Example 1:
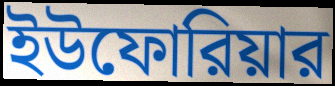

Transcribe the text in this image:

ইউফোরিয়ার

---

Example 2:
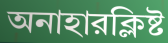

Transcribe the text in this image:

অনাহারক্লিষ্ট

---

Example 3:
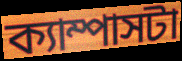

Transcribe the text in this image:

ক্যাম্পাসটা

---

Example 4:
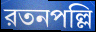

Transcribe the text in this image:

রতনপল্লি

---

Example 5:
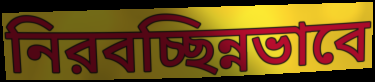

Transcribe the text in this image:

নিরবচ্ছিন্নভাবে